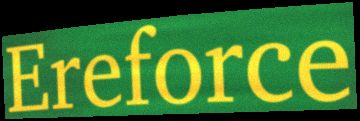
Ereforce